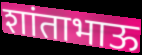
शांताभाऊ